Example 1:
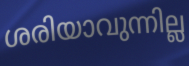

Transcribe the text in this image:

ശരിയാവുന്നില്ല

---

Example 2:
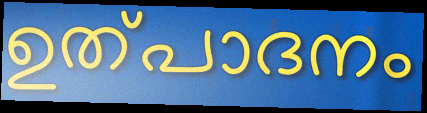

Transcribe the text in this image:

ഉത്പാദനം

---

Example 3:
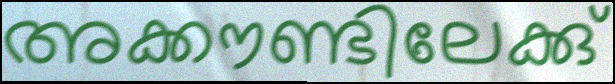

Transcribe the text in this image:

അക്കൗണ്ടിലേക്കു്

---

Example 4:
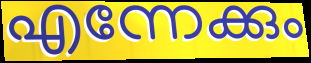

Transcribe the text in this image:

എന്നേക്കും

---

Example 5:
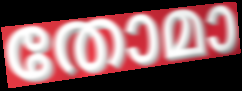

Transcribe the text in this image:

തോമാ